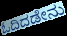
ಓದಿದಡೇನು